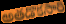
అతడొకసారి